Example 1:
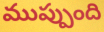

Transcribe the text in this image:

ముప్పుంది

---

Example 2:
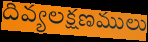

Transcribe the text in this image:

దివ్యలక్షణములు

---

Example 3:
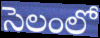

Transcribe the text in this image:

సెలంలో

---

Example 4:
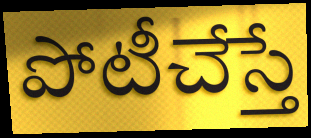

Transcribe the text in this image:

పోటీచేస్తే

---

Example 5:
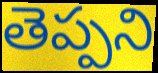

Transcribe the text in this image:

తెప్పని